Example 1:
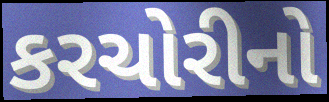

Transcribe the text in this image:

કરચોરીનો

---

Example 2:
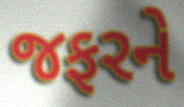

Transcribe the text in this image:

જફરને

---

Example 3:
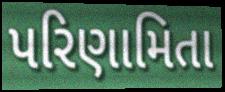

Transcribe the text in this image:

પરિણામિતા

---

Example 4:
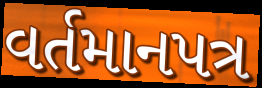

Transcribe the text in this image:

વર્તમાનપત્ર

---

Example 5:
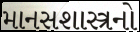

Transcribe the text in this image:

માનસશાસ્ત્રનો